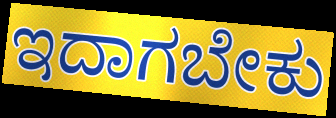
ಇದಾಗಬೇಕು